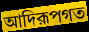
আদিরূপগত